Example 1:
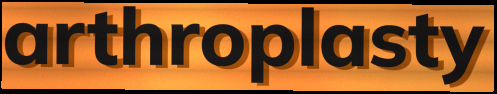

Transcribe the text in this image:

arthroplasty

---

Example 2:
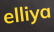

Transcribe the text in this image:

elliya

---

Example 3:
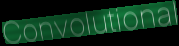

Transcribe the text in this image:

Convolutional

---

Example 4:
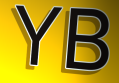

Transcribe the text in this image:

YB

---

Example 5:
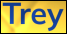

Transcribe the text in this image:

Trey